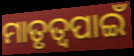
ମାତୃତ୍ୱପାଇଁ